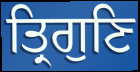
ਤ੍ਰਿਗੁਣਿ